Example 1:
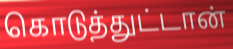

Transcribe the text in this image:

கொடுத்துட்டான்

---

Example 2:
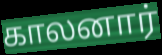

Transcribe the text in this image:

காலனார்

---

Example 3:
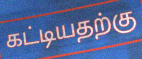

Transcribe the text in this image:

கட்டியதற்கு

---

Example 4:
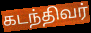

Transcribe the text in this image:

கடந்திவர்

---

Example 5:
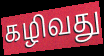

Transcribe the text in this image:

கழிவது